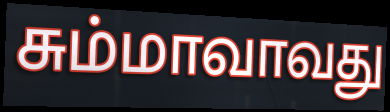
சும்மாவாவது